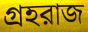
গ্রহরাজ